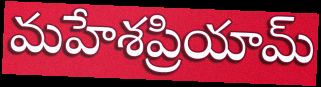
మహేశప్రియామ్